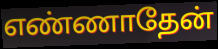
எண்ணாதேன்